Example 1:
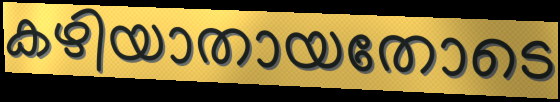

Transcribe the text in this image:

കഴിയാതായതോടെ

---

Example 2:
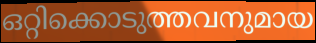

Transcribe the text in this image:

ഒറ്റിക്കൊടുത്തവനുമായ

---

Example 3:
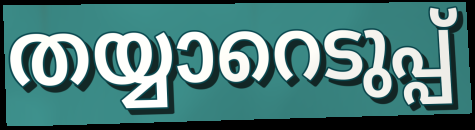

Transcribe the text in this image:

തയ്യാറെടുപ്പ്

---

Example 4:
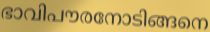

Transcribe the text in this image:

ഭാവിപൗരനോടിങ്ങനെ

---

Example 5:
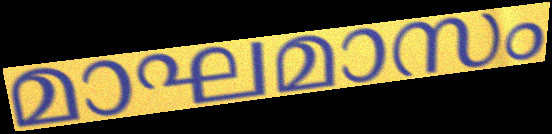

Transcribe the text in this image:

മാഘമാസം